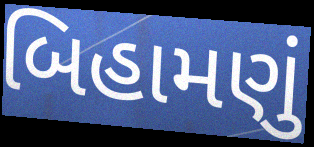
બિહામણું